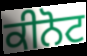
ਕੀਨੋਟ